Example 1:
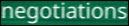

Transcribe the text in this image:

negotiations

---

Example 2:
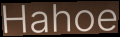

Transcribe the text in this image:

Hahoe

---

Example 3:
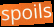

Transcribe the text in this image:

spoils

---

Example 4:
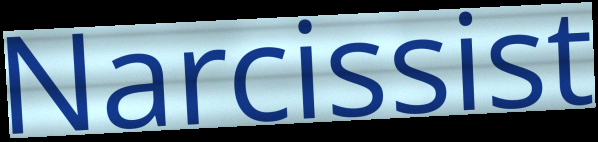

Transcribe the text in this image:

Narcissist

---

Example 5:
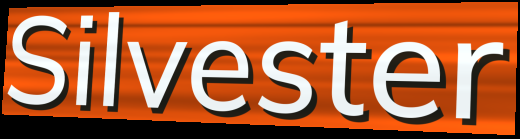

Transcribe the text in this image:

Silvester